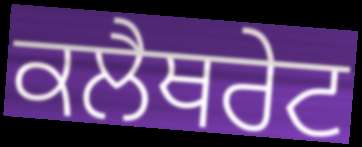
ਕਲੈਥਰੇਟ